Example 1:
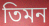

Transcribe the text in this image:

তিমন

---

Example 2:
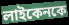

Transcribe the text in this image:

লাইকেনকে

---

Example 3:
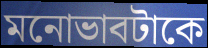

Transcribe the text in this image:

মনোভাবটাকে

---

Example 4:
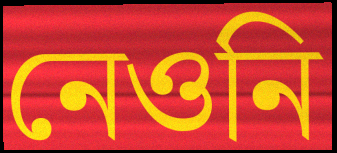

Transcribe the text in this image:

নেওনি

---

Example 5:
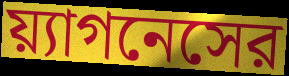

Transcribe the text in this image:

য়্যাগনেসের